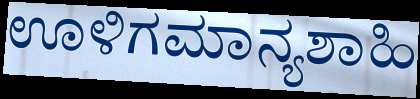
ಊಳಿಗಮಾನ್ಯಶಾಹಿ